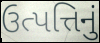
ઉત્પત્તિનું